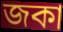
জকা